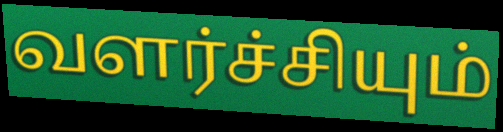
வளர்ச்சியும்